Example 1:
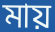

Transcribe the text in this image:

মায়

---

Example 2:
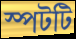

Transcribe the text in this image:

স্পটটি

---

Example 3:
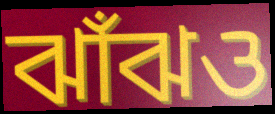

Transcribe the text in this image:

ঝাঁঝও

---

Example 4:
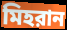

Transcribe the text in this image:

মিহরান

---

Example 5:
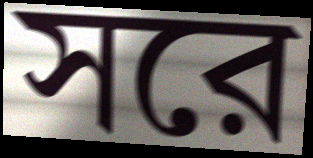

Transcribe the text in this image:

সরে